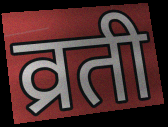
व्रती